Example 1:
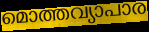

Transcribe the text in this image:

മൊത്തവ്യാപാര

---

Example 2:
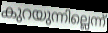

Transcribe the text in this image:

കുറയുന്നില്ലെന്ന്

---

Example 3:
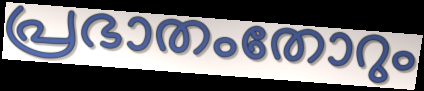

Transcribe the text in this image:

പ്രഭാതംതോറും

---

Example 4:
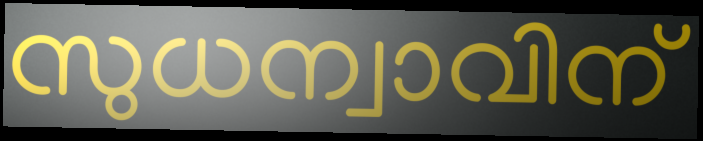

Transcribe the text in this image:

സുധന്വാവിന്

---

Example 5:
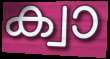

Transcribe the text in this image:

ക്വാ